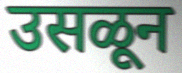
उसळून